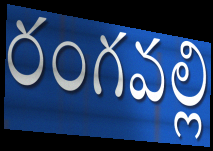
రంగవల్లి